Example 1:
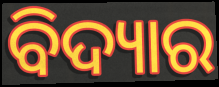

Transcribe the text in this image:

ବିଦ୍ୟାର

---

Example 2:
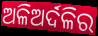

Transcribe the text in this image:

ଅଳିଅର୍ଦଳିର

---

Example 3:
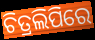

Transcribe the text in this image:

ଚିତ୍ରଲିପିରେ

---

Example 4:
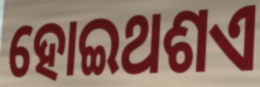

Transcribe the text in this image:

ହୋଇଥଶଏ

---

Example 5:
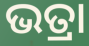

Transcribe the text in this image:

ଭତ୍ରା